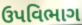
ઉપવિભાગ